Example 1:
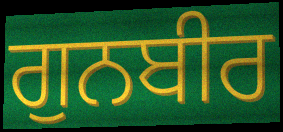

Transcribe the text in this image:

ਗੁਨਬੀਰ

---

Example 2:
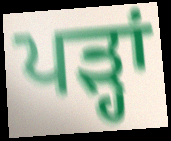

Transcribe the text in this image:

ਪੜ੍ਹਾਂ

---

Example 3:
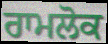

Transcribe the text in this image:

ਰਾਮਲੋਕ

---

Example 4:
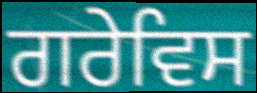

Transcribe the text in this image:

ਗਰੇਵਿਸ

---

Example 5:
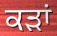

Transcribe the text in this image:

ਕੜਾਂ